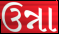
ઉન્ના